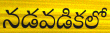
నడవడికలో